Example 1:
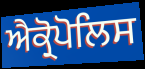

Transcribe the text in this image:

ਐਕ੍ਰੋਪੋਲਿਸ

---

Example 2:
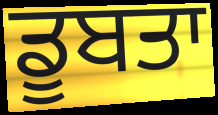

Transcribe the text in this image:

ਡੂਬਤਾ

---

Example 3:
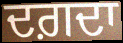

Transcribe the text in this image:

ਦਗ਼ਦਾ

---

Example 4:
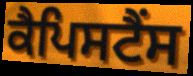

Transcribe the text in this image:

ਕੈਪਿਸਟੈਂਸ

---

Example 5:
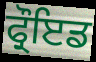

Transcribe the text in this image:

ਫ੍ਰੌਇਡ